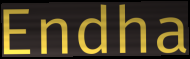
Endha